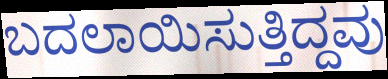
ಬದಲಾಯಿಸುತ್ತಿದ್ದವು